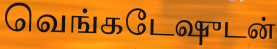
வெங்கடேஷுடன்